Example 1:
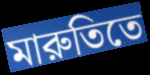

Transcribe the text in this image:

মারুতিতে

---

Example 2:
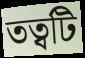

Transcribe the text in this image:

তত্বটি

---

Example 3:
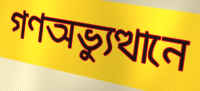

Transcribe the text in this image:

গণঅভ্যুত্থানে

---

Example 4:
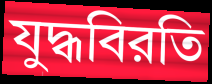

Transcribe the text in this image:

যুদ্ধবিরতি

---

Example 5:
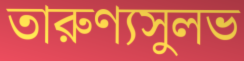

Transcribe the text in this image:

তারুণ্যসুলভ